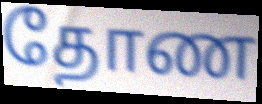
தோண